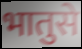
भातुसे